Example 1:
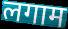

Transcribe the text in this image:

लगाम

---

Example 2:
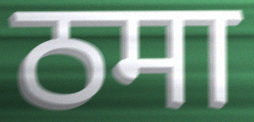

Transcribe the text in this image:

ठमा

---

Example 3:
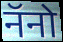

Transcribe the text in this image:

नॅनो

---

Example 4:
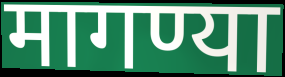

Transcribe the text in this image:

मागण्या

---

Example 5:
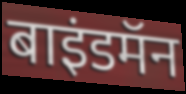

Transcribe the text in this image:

बाइंडमॅन